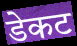
डेकट